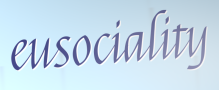
eusociality